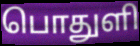
பொதுளி